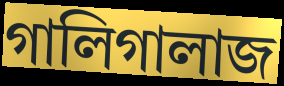
গালিগালাজ